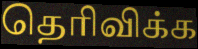
தெரிவிக்க